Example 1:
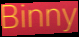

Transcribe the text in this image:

Binny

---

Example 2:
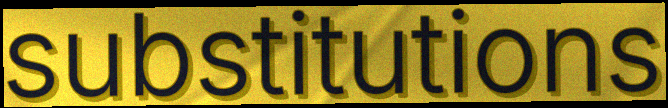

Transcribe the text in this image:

substitutions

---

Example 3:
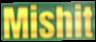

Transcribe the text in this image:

Mishit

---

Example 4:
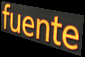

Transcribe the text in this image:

fuente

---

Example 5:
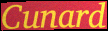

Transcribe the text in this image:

Cunard